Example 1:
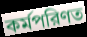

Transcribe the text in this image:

কর্মপরিণত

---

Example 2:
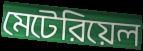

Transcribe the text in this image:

মেটেরিয়েল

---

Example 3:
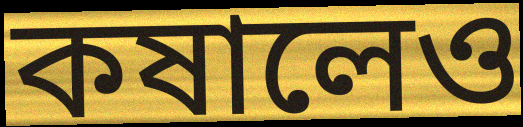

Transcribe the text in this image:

কষালেও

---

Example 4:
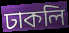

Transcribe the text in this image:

ঢাকলি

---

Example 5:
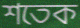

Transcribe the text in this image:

শতেক